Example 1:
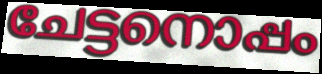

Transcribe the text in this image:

ചേട്ടനൊപ്പം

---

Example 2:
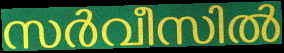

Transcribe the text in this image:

സർവീസിൽ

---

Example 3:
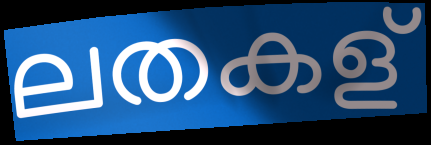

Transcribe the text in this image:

ലതകള്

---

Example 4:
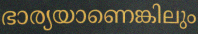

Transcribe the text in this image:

ഭാര്യയാണെങ്കിലും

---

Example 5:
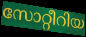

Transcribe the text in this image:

സോറ്റീറിയ